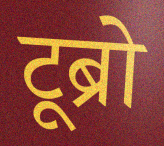
टूब्रो